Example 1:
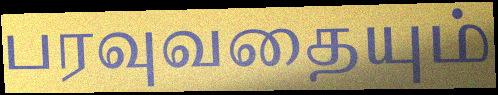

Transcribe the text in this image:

பரவுவதையும்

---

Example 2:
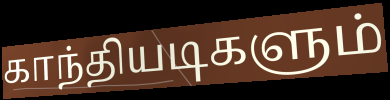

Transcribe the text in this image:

காந்தியடிகளும்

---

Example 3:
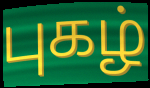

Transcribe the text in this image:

புகழ்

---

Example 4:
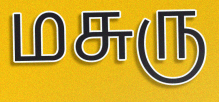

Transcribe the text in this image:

மசுரு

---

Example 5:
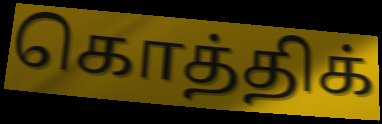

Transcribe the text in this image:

கொத்திக்